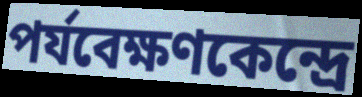
পর্যবেক্ষণকেন্দ্রে